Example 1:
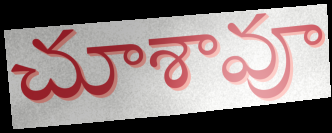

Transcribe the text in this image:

చూశావూ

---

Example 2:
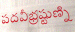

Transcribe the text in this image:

పదవీభ్రష్టుణ్ని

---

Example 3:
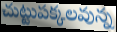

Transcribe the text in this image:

చుట్టుపక్కలవున్న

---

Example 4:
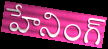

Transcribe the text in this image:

హేనింగ్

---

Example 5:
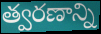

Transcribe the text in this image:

త్వరణాన్ని